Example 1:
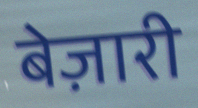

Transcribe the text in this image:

बेज़ारी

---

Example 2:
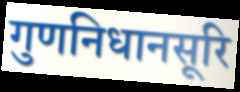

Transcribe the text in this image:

गुणनिधानसूरि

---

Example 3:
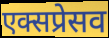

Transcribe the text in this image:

एक्सप्रेसव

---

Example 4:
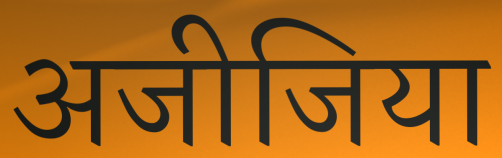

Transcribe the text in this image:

अजीजिया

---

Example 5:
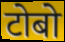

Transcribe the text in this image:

टोबो